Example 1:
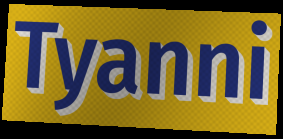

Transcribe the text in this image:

Tyanni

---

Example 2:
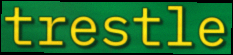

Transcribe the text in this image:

trestle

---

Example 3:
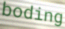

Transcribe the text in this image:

boding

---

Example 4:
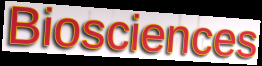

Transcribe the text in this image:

Biosciences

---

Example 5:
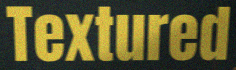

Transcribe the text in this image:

Textured